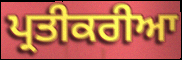
ਪ੍ਰਤੀਕਰੀਆ